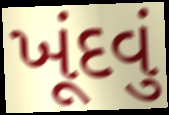
ખૂંદવું